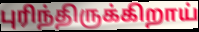
புரிந்திருக்கிறாய்